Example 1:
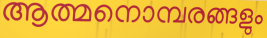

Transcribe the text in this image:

ആത്മനൊമ്പരങ്ങളും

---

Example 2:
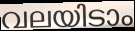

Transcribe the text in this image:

വലയിടാം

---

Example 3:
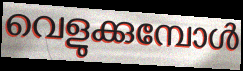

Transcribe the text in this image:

വെളുക്കുമ്പോൾ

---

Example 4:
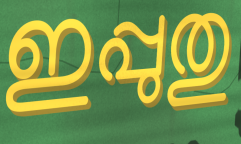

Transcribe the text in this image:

ഇപ്പുതു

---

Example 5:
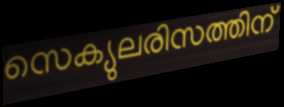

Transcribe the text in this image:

സെക്യുലരിസത്തിന്